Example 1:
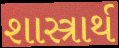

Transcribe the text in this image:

શાસ્ત્રાર્થ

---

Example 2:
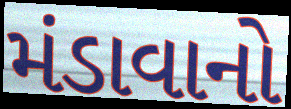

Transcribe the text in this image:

મંડાવાનો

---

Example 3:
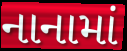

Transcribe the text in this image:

નાનામાં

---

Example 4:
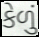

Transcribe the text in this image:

કેળું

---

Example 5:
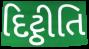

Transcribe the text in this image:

દિટ્ઠીતિ